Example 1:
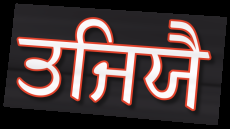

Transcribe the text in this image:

ਤਜਿਯੈ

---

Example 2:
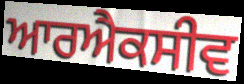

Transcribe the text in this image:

ਆਰਐਕਸੀਵ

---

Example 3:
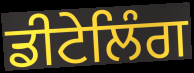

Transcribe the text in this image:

ਡੀਟੇਲਿੰਗ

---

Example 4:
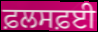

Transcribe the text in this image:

ਫ਼ਲਸਫ਼ਈ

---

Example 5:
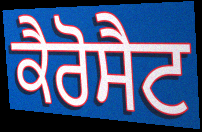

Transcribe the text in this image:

ਕੈਰੋਸੈਟ